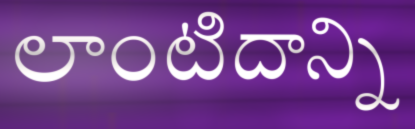
లాంటిదాన్ని